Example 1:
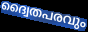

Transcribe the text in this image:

ദ്വൈതപരവും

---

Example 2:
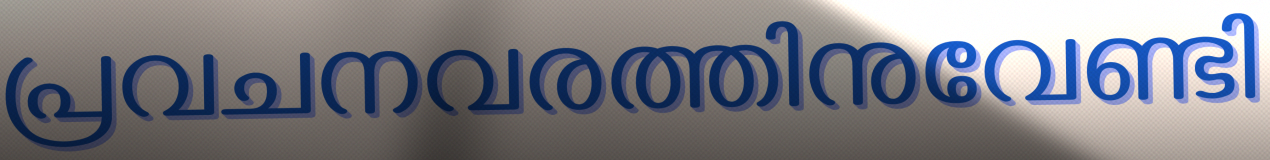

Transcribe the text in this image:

പ്രവചനവരത്തിനുവേണ്ടി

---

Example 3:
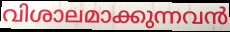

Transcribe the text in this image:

വിശാലമാക്കുന്നവൻ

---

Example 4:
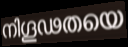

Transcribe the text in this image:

നിഗൂഢതയെ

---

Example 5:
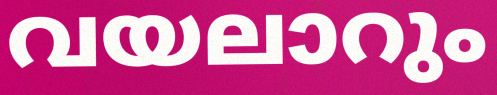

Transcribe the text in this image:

വയലാറും